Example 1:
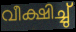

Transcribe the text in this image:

വീക്ഷിച്ചു്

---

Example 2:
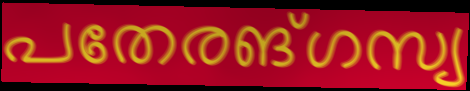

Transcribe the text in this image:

പതേരങ്ഗസ്യ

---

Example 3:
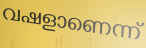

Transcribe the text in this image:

വഷളാണെന്ന്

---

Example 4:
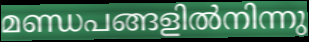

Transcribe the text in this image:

മണ്ഡപങ്ങളിൽനിന്നു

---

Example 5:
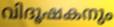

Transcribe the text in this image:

വിദൂഷകനും